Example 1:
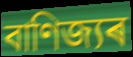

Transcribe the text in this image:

বাণিজ্যৰ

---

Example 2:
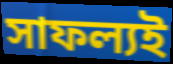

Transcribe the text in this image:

সাফল্যই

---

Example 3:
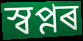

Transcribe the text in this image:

স্বপ্নৰ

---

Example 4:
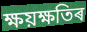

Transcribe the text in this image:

ক্ষয়ক্ষতিৰ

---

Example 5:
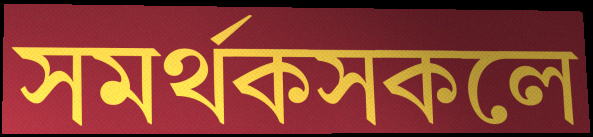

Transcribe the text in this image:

সমৰ্থকসকলে